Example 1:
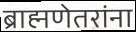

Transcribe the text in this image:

ब्राह्मणेतरांना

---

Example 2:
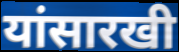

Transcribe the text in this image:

यांसारखी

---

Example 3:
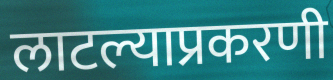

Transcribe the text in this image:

लाटल्याप्रकरणी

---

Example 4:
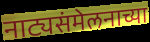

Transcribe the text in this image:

नाट्यसंमेलनाच्या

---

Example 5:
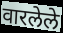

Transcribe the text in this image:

वारलेले